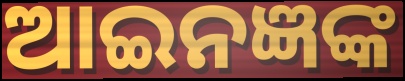
ଆଇନଜ୍ଞଙ୍କ